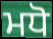
ਮਧੋ